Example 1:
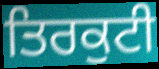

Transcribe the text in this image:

ਤਿਰਕੁਟੀ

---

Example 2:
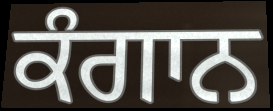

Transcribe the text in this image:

ਕੰਗਾਨ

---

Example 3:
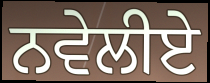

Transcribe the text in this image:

ਨਵੇਲੀਏ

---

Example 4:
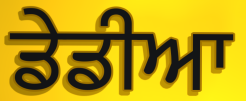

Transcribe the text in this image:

ਡੇਡੀਆ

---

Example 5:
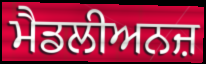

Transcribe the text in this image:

ਮੈਡਲੀਅਨਜ਼